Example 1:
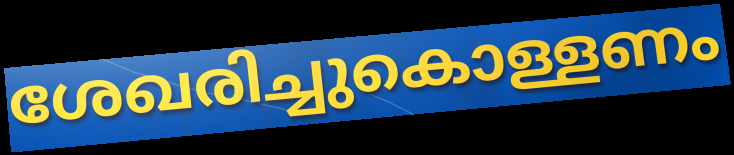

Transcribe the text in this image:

ശേഖരിച്ചുകൊള്ളണം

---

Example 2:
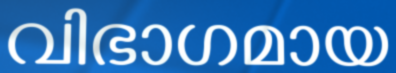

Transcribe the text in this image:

വിഭാഗമായ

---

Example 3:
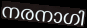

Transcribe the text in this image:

നരനാഗി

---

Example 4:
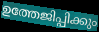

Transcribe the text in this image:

ഉത്തേജിപ്പിക്കും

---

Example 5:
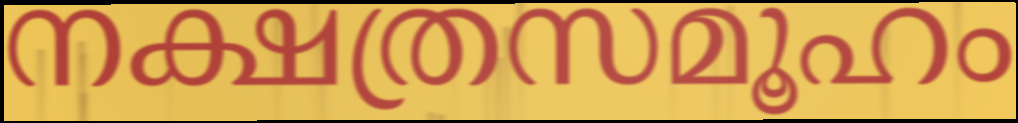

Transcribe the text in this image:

നക്ഷത്രസമൂഹം